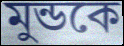
মুন্ডকে